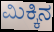
ಮಿಕ್ಕಿನ